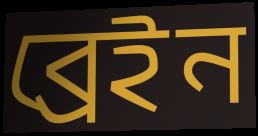
ব্রেইন